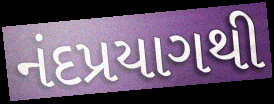
નંદપ્રયાગથી